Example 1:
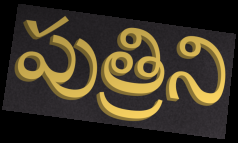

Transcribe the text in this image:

పుత్రిని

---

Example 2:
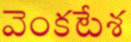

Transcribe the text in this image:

వెంకటేశ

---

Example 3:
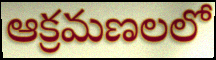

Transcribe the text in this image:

ఆక్రమణలలో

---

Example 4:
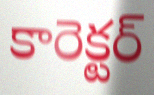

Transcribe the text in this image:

కారెక్టర్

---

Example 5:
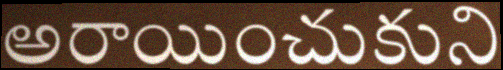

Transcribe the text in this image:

అరాయించుకుని